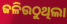
ଜଳିଉଠୁଥିଲା